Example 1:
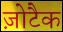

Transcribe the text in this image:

ज़ोटैक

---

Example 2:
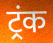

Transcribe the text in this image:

ट्रंक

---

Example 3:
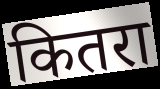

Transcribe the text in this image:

कितरा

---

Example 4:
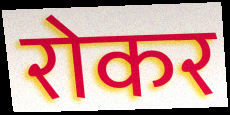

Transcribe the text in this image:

रोकर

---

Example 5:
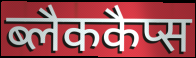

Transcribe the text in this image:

ब्लैककैप्स